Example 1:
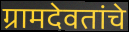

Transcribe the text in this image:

ग्रामदेवतांचे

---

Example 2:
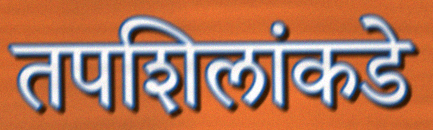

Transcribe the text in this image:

तपशिलांकडे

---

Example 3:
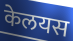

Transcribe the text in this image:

केलयस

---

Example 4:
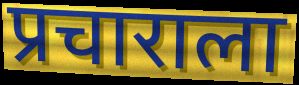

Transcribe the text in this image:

प्रचाराला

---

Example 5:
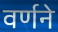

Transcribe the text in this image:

वर्णने